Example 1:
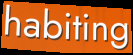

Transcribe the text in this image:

habiting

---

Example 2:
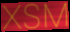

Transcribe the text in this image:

XSM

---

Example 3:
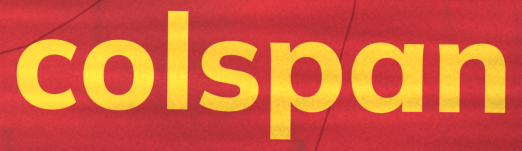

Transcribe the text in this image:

colspan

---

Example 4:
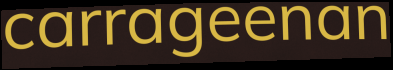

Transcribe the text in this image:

carrageenan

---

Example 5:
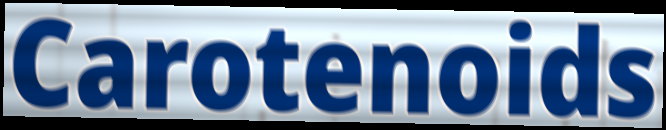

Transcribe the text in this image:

Carotenoids